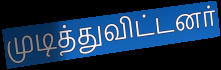
முடித்துவிட்டனர்